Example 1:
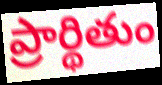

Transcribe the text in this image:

ప్రార్థితుం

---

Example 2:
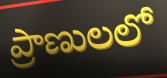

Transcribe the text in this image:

ప్రాణులలో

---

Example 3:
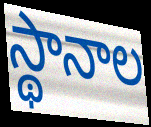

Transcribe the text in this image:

స్థానాల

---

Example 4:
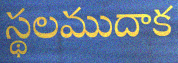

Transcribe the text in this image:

స్థలముదాక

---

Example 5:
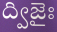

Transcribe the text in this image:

ద్విజైః